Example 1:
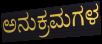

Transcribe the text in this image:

ಅನುಕ್ರಮಗಳ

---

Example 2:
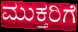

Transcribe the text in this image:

ಮುಕ್ತರಿಗೆ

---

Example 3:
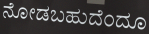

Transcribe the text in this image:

ನೋಡಬಹುದೆಂದೂ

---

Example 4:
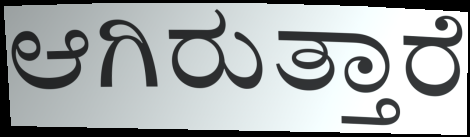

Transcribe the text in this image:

ಆಗಿರುತ್ತಾರೆ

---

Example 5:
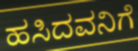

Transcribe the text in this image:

ಹಸಿದವನಿಗೆ